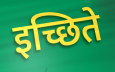
इच्छिते